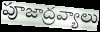
పూజాద్రవ్యాలు